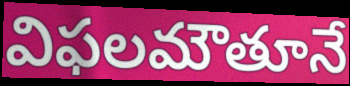
విఫలమౌతూనే